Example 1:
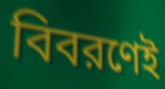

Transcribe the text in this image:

বিবরণেই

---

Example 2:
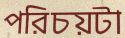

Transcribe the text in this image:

পরিচয়টা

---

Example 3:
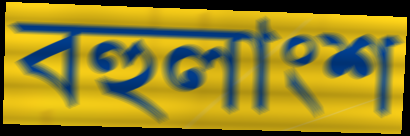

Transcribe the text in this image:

বহুলাংশ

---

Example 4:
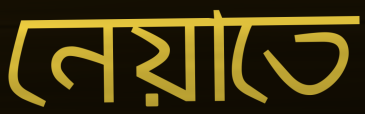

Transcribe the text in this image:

নেয়াতে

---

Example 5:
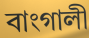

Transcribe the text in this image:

বাংগালী